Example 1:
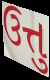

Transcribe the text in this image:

ઉત્તુ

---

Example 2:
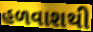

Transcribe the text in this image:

હળવાશથી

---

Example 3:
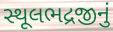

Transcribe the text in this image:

સ્થૂલભદ્રજીનું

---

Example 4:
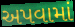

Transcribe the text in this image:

અપવામાં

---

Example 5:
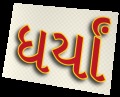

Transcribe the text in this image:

ધર્યાં